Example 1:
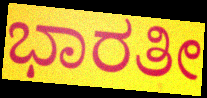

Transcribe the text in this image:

ಭಾರತೀ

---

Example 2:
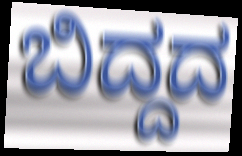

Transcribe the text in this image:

ಬಿದ್ದದ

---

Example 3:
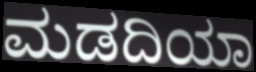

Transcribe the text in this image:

ಮಡದಿಯಾ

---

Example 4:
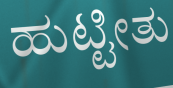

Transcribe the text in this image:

ಹುಟ್ಟೀತು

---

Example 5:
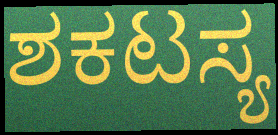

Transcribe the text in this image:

ಶಕಟಸ್ಯ